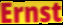
Ernst